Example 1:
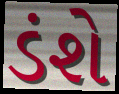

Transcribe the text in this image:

ડંશે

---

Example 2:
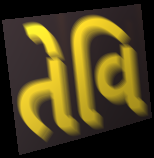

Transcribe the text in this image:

તેવિ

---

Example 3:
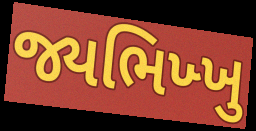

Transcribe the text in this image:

જ્યભિખ્ખુ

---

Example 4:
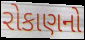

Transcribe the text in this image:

રોકાણનો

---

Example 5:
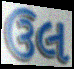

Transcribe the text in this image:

ઉલ